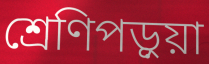
শ্রেণিপড়ুয়া